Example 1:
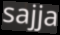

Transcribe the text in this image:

sajja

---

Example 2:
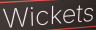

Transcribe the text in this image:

Wickets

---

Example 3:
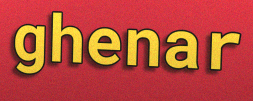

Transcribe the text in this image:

ghenar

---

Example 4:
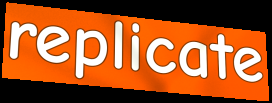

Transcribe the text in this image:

replicate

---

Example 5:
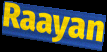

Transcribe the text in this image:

Raayan